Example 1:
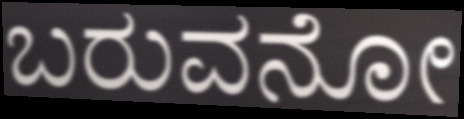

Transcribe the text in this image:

ಬರುವನೋ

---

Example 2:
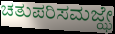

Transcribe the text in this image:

ಚತುಪರಿಸಮಜ್ಝೇ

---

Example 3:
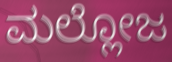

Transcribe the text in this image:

ಮಲ್ಲೋಜ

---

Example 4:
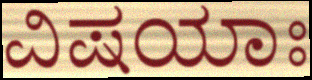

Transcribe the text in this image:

ವಿಷಯಾಃ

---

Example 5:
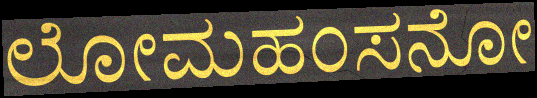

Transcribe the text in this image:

ಲೋಮಹಂಸನೋ